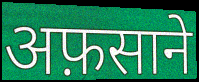
अफ़साने